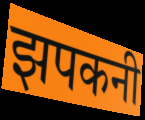
झपकनी